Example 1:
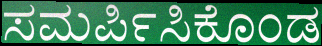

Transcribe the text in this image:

ಸಮರ್ಪಿಸಿಕೊಂಡ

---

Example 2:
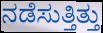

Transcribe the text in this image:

ನಡೆಸುತ್ತಿತ್ತು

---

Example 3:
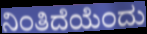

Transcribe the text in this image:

ನಿಂತಿದೆಯೆಂದು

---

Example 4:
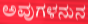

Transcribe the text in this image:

ಅವುಗಳನುನ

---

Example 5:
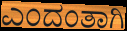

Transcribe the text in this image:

ಎಂದಂತಾಗಿ